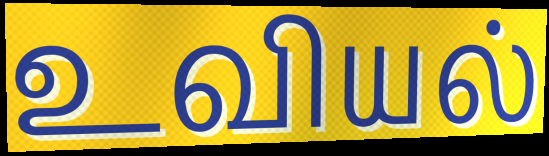
உவியல்